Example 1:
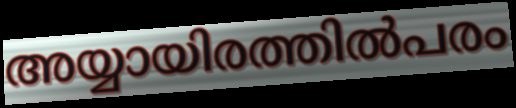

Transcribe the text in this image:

അയ്യായിരത്തിൽപരം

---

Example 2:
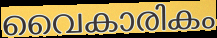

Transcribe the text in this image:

വൈകാരികം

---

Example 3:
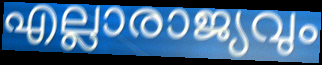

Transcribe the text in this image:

എല്ലാരാജ്യവും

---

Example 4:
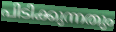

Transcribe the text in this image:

പിടിക്കുന്നതും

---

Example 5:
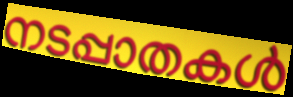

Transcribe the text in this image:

നടപ്പാതകൾ